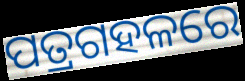
ପତ୍ରଗହଳରେ